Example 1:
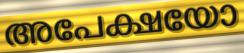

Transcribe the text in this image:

അപേക്ഷയോ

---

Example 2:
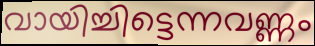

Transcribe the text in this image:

വായിച്ചിട്ടെന്നവണ്ണം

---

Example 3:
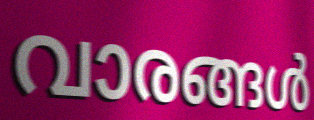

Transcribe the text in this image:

വാരങ്ങൾ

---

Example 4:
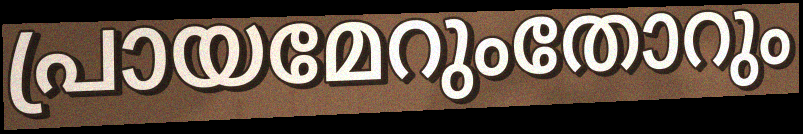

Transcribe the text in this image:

പ്രായമേറുംതോറും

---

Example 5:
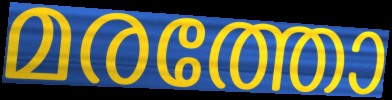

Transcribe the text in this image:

മരത്തോ